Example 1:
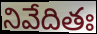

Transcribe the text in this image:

నివేదితః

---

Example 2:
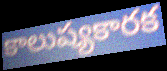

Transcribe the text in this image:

కాలుష్యకారక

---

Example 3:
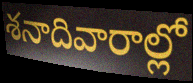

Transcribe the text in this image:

శనాదివారాల్లో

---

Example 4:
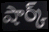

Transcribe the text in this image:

షార్క్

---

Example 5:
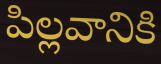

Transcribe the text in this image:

పిల్లవానికి